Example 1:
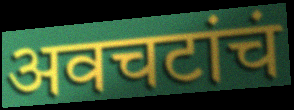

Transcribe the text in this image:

अवचटांचं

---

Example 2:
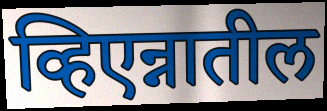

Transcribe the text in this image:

व्हिएन्नातील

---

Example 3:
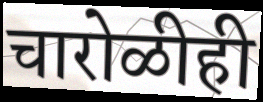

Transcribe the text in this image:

चारोळीही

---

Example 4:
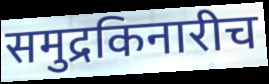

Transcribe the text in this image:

समुद्रकिनारीच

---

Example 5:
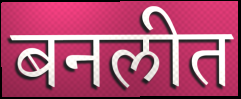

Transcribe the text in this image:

बनलीत